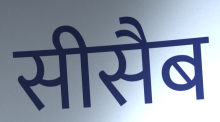
सीसैब